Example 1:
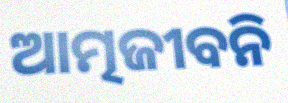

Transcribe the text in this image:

ଆତ୍ମଜୀବନି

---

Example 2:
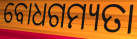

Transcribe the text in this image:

ବୋଧଗମ୍ୟତା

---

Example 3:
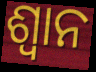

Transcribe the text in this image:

ଶ୍ଵାନ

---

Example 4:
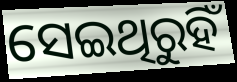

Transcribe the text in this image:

ସେଇଥିରୁହିଁ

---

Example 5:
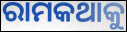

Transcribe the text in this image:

ରାମକଥାକୁ